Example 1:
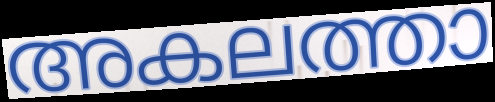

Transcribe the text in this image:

അകലത്താ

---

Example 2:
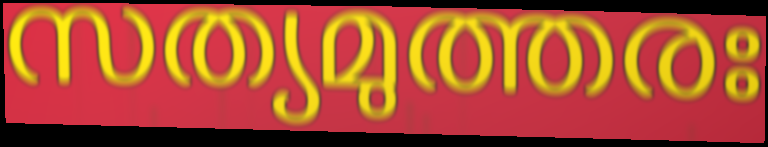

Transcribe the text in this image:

സത്യമുത്തരഃ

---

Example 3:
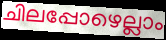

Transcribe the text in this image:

ചിലപ്പോഴെല്ലാം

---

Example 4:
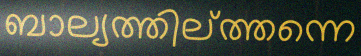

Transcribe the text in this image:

ബാല്യത്തില്ത്തന്നെ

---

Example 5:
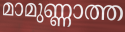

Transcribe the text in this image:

മാമുണ്ണാത്ത